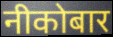
नीकोबार